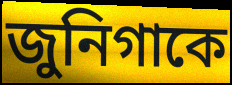
জুনিগাকে